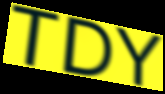
TDY